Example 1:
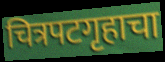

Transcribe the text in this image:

चित्रपटगृहाचा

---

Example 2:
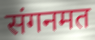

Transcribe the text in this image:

संगनमत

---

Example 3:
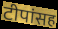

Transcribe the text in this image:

टीपांसह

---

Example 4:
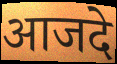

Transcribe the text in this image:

आजदे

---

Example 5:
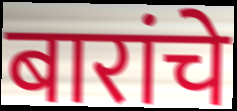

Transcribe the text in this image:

बारांचे